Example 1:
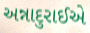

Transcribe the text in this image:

અન્નાદુરાઈએ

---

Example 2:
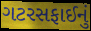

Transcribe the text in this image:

ગટરસફાઈનું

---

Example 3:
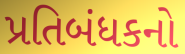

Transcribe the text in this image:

પ્રતિબંધકનો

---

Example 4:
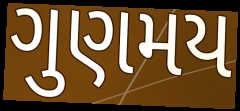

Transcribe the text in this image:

ગુણમય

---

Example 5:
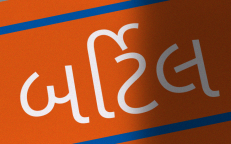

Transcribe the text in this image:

બર્ટિલ